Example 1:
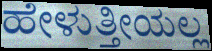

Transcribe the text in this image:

ಹೇಳುತ್ತೀಯಲ್ಲ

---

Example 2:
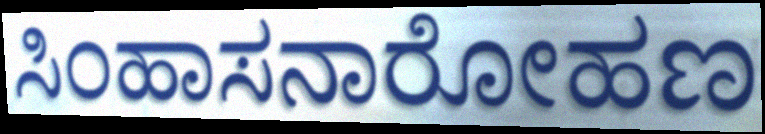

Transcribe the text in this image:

ಸಿಂಹಾಸನಾರೋಹಣ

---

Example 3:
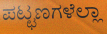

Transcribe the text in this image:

ಪಟ್ಟಣಗಳೆಲ್ಲಾ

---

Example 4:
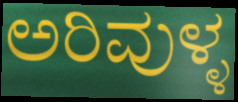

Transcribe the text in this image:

ಅರಿವುಳ್ಳ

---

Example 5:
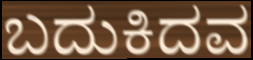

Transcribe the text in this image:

ಬದುಕಿದವ